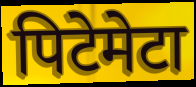
पिटेमेटा